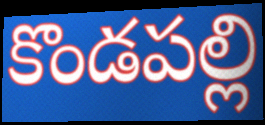
కొండపల్లి